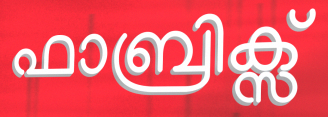
ഫാബ്രിക്സ്